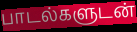
பாடல்களுடன்